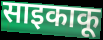
साइकाकू